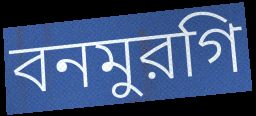
বনমুরগি